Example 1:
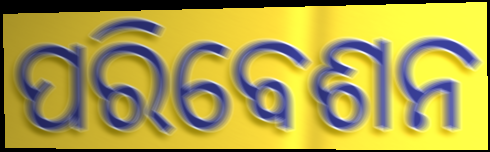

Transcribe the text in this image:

ପରିବେଶନ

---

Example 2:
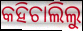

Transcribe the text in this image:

କହିଚାଲିଲୁ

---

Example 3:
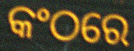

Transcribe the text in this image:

କଂଠରେ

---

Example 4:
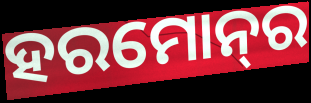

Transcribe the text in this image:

ହରମୋନ୍‍ର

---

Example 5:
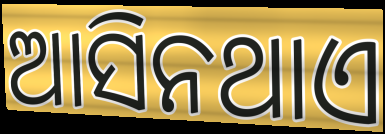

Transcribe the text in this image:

ଆସିନଥାଏ